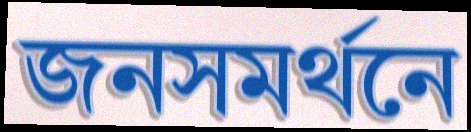
জনসমর্থনে